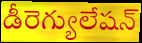
డీరెగ్యులేషన్